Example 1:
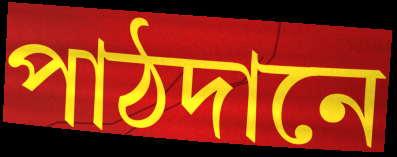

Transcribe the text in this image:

পাঠদানে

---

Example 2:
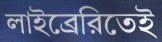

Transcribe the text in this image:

লাইব্রেরিতেই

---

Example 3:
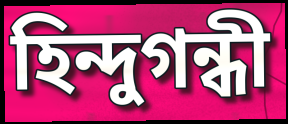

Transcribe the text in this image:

হিন্দুগন্ধী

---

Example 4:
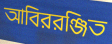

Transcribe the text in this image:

আবিররঞ্জিত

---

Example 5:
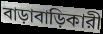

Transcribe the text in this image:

বাড়াবাড়িকারী